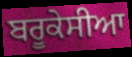
ਬਰੂਕੇਸੀਆ